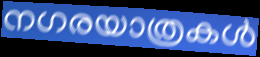
നഗരയാത്രകൾ